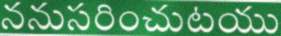
ననుసరించుటయు